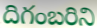
దిగంబరిని